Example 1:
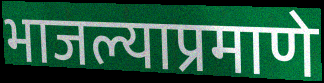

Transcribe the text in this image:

भाजल्याप्रमाणे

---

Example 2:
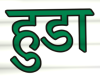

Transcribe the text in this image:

हुडा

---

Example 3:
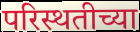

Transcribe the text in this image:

परिस्थतीच्या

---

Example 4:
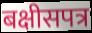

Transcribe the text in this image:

बक्षीसपत्र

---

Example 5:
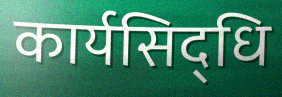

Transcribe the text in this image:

कार्यसिद्धि